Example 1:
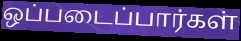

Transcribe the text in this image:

ஒப்படைப்பார்கள்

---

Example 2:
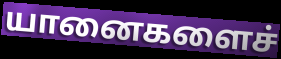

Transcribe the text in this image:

யானைகளைச்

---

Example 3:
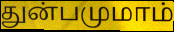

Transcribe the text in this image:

துன்பமுமாம்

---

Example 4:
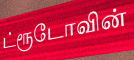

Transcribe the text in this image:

ட்ரூடோவின்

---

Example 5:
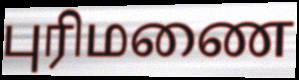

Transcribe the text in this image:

புரிமணை